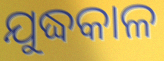
ଯୁଦ୍ଧକାଳ